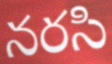
నరసి